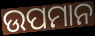
ଉପମାନ